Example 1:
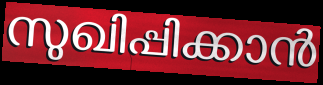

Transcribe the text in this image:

സുഖിപ്പിക്കാൻ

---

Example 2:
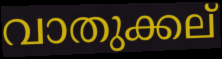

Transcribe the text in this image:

വാതുക്കല്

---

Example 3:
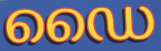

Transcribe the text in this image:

ഡൈ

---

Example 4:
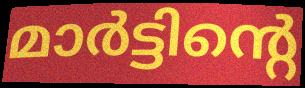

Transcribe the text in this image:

മാർട്ടിന്റെ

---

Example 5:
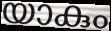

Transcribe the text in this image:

യാകും